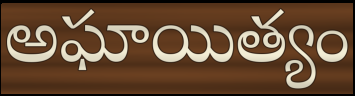
అఘాయిత్యం